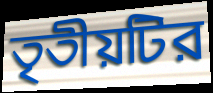
তৃতীয়টির